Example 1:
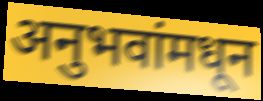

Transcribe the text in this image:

अनुभवांमधून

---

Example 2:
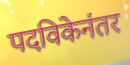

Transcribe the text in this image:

पदविकेनंतर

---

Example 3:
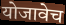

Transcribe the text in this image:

योजावेच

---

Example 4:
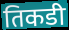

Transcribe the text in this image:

तिकडी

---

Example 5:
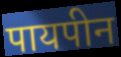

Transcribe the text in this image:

पायपीन